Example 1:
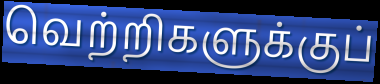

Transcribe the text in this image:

வெற்றிகளுக்குப்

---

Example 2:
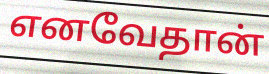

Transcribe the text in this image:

எனவேதான்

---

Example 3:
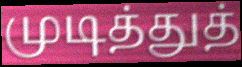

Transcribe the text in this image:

முடித்துத்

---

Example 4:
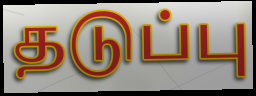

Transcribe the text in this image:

தடுப்பு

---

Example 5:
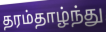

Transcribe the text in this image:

தரம்தாழ்ந்து